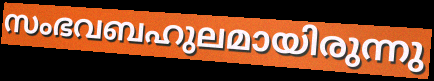
സംഭവബഹുലമായിരുന്നു